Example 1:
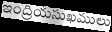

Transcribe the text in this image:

ఇంద్రియసుఖములు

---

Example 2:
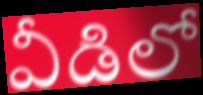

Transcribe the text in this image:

వీడిలో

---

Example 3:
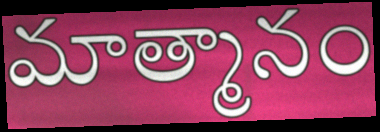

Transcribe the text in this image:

మాత్మానం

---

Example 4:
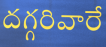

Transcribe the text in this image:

దగ్గరివారే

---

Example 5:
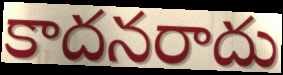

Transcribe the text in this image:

కాదనరాదు